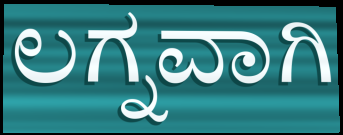
ಲಗ್ನವಾಗಿ